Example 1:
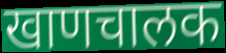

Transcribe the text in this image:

खाणचालक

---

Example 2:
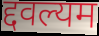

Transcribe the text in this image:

द्दवल्यम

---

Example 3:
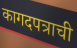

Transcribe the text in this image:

कागदपत्राची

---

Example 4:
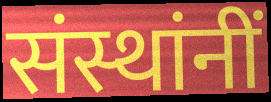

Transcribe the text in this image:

संस्थांनीं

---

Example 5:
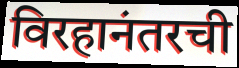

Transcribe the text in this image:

विरहानंतरची